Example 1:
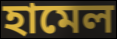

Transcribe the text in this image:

হামেল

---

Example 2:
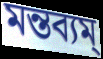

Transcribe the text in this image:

মন্তব্যম্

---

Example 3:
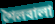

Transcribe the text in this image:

শৈলবালা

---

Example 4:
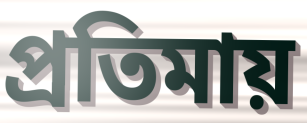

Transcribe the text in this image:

প্রতিমায়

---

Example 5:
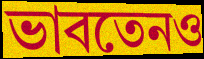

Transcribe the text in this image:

ভাবতেনও